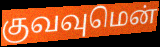
குவவுமென்